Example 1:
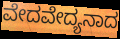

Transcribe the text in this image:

ವೇದವೇದ್ಯನಾದ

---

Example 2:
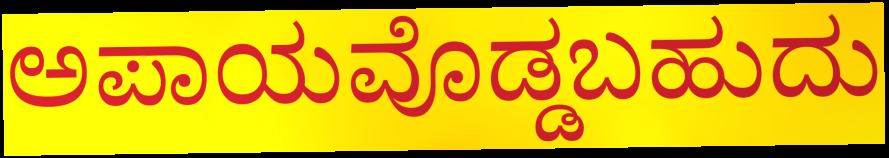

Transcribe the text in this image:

ಅಪಾಯವೊಡ್ಡಬಹುದು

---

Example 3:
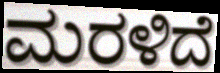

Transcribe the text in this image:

ಮರಳಿದೆ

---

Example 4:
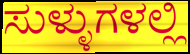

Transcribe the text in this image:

ಸುಳ್ಳುಗಳಲ್ಲಿ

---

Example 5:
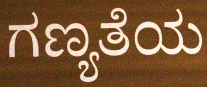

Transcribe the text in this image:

ಗಣ್ಯತೆಯ